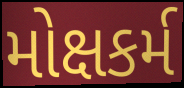
મોક્ષકર્મ